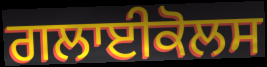
ਗਲਾਈਕੋਲਸ